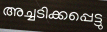
അച്ചടിക്കപ്പെട്ടു